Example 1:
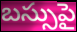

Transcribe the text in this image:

బస్సుపై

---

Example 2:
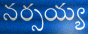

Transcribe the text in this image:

నర్సయ్య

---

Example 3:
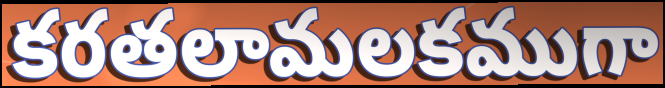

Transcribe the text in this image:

కరతలామలకముగా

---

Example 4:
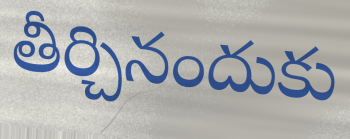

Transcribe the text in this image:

తీర్చినందుకు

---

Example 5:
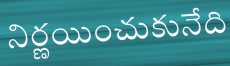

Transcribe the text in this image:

నిర్ణయించుకునేది